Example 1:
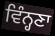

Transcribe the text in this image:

ਵਿੰਨ੍ਹਣਾ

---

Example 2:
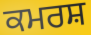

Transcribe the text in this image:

ਕਮਰਸ਼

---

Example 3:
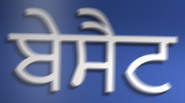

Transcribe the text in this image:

ਬੇਸੈਟ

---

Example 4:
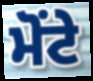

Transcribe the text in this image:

ਮੋਂਟੇ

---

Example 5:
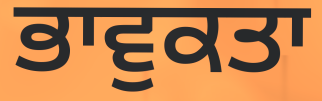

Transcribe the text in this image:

ਭਾਵੁਕਤਾ